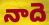
నాదె